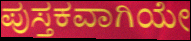
ಪುಸ್ತಕವಾಗಿಯೇ